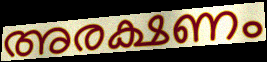
അരക്ഷണം